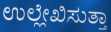
ಉಲ್ಲೇಖಿಸುತ್ತಾ